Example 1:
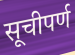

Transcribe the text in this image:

सूचीपर्ण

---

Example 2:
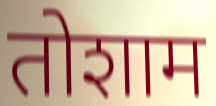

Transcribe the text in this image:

तोशाम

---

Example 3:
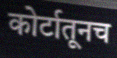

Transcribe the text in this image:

कोर्टातूनच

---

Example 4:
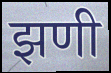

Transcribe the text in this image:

झणी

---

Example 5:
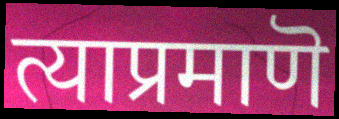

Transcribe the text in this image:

त्याप्रमाणॆ